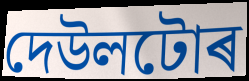
দেউলটোৰ